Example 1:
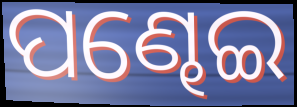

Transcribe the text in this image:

ପଣ୍ଢେଇ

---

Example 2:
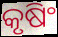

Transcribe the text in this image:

କୃଷିଂ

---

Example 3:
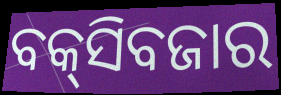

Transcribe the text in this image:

ବକ୍‌ସିବଜାର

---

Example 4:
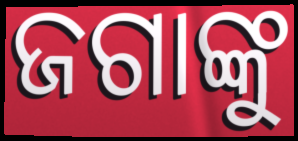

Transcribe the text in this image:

ଜଗାଙ୍କୁ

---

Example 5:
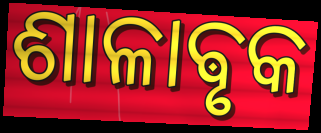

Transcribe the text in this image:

ଶାଳାଵୃକ